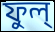
ফুল্